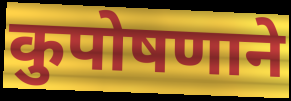
कुपोषणाने